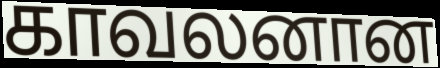
காவலனான